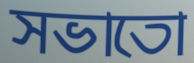
সভাতো